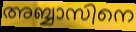
അബ്ബാസിനെ